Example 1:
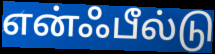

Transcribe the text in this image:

என்ஃபீல்டு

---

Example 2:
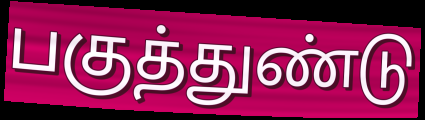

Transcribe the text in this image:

பகுத்துண்டு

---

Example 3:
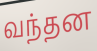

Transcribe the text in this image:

வந்தன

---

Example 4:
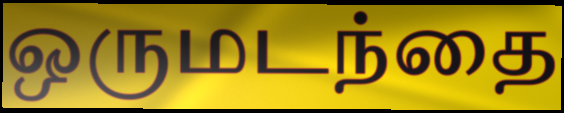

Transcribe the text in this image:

ஒருமடந்தை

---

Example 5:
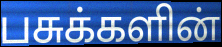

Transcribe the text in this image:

பசுக்களின்